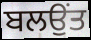
ਬਲਉਂਤ